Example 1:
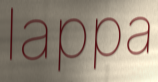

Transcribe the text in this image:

lappa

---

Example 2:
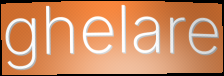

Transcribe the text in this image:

ghelare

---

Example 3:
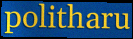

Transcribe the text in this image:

politharu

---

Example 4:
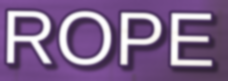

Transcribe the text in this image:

ROPE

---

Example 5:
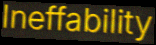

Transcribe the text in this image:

Ineffability